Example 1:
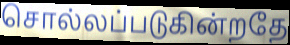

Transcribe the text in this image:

சொல்லப்படுகின்றதே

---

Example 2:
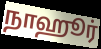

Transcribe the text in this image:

நாஹூர்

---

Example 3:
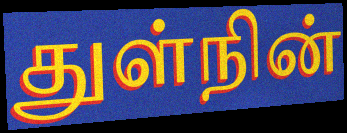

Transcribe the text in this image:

துள்நின்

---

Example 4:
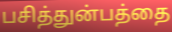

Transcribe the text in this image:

பசித்துன்பத்தை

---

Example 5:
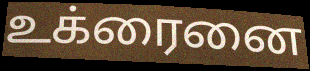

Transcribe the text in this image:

உக்ரைனை